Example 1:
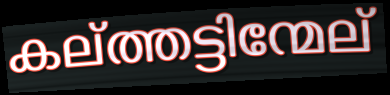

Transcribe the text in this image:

കല്ത്തട്ടിന്മേല്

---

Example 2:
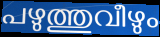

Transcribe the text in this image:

പഴുത്തുവീഴും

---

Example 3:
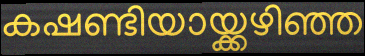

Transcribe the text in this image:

കഷണ്ടിയായ്ക്കഴിഞ്ഞ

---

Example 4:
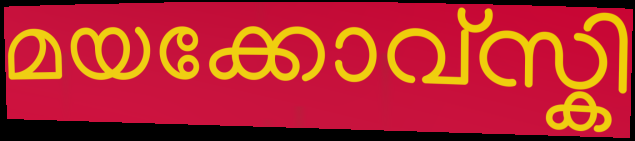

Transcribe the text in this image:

മയക്കോവ്സ്കി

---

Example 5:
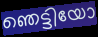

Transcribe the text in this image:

ഞെട്ടിയോ